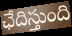
ఛేదిస్తుంది